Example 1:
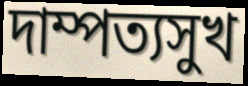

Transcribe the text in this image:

দাম্পত্যসুখ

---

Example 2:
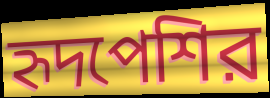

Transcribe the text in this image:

হৃদপেশির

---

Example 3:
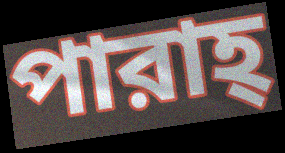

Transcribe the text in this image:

পারাহ্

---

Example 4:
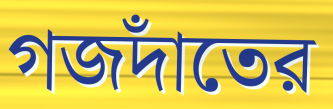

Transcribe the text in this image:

গজদাঁতের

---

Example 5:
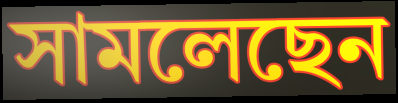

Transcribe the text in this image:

সামলেছেন